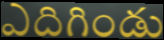
ఎదిగిండు